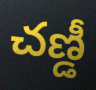
చణ్డీ